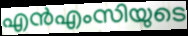
എൻഎംസിയുടെ